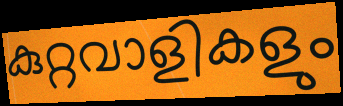
കുറ്റവാളികളും